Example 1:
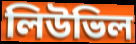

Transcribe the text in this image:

লিউভিল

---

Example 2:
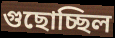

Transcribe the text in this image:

গুছোচ্ছিল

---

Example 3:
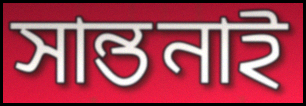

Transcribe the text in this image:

সান্তনাই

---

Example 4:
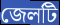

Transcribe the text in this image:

জেলটি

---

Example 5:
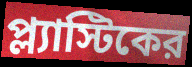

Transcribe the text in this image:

প্ল্যাস্টিকের